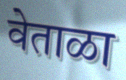
वेताळा